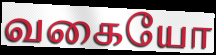
வகையோ